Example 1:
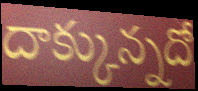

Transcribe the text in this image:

దాక్కున్నదో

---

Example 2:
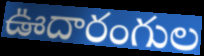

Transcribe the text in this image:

ఊదారంగుల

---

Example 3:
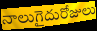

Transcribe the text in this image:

నాలుగైదురోజులు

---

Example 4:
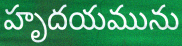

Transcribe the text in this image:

హృదయమును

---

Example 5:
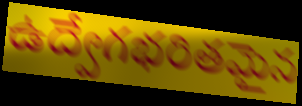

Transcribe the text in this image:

ఉద్వేగభరితమైన